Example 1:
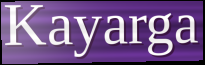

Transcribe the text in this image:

Kayarga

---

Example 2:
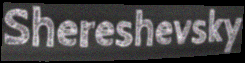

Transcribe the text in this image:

Shereshevsky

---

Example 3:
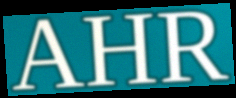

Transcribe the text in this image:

AHR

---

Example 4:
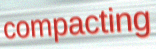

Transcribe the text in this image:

compacting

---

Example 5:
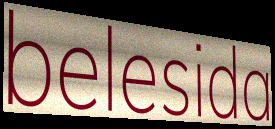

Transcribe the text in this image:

belesida